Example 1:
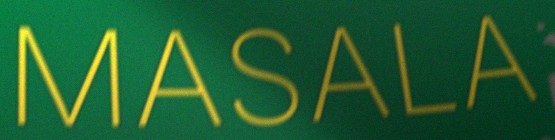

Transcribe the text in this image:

MASALA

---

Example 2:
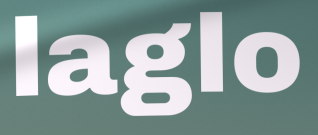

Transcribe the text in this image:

laglo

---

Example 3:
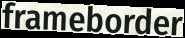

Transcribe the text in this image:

frameborder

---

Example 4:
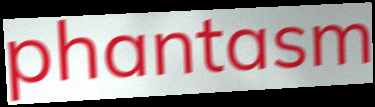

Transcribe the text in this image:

phantasm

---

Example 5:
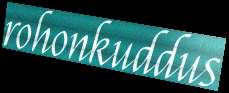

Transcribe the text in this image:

rohonkuddus